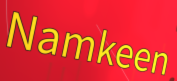
Namkeen